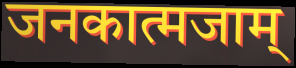
जनकात्मजाम्